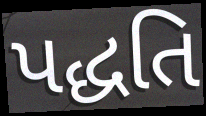
પદ્ધતિ